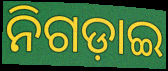
ନିଗଡ଼ାଇ